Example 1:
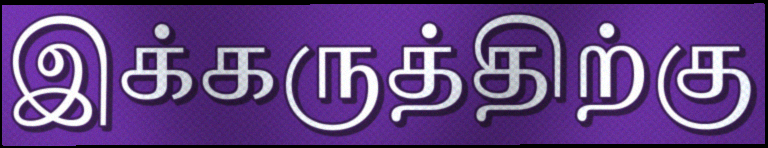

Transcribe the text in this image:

இக்கருத்திற்கு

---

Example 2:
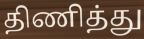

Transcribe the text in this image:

திணித்து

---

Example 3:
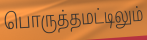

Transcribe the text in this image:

பொருத்தமட்டிலும்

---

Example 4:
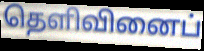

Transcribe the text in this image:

தெளிவினைப்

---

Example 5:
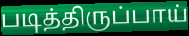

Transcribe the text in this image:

படித்திருப்பாய்